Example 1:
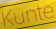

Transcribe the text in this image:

Kunte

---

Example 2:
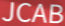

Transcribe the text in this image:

JCAB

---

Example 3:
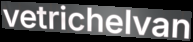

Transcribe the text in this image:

vetrichelvan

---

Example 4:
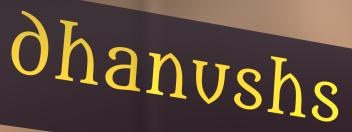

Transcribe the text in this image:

dhanushs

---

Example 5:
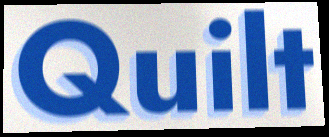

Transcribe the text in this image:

Quilt